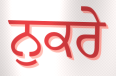
ਨੁਕਰੇ